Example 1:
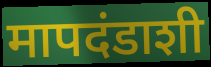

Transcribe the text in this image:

मापदंडाशी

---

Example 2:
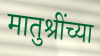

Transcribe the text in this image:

मातुश्रींच्या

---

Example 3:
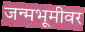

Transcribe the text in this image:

जन्मभूमीवर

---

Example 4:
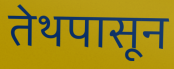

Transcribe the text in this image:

तेथपासून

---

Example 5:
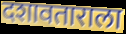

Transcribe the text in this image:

दशावताराला